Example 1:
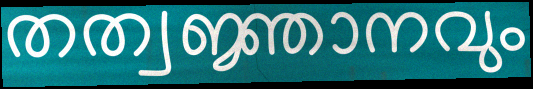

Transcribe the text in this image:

തത്വജ്ഞാനവും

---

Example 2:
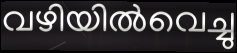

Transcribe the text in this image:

വഴിയിൽവെച്ചു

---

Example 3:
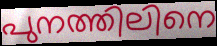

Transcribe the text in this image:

പുനത്തിലിനെ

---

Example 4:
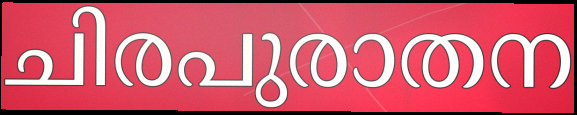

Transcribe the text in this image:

ചിരപുരാതന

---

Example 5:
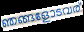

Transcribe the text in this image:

ഞങ്ങളോടവര്